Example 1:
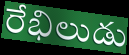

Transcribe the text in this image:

రేభిలుడు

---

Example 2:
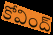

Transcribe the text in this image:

కోవింద్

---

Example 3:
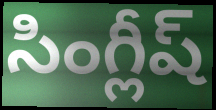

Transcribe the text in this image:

సింగ్లీష్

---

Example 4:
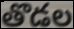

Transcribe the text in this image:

తొడల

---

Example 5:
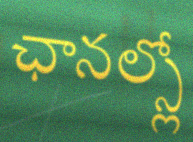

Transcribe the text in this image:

ఛానల్స్లో